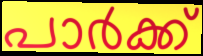
പാർക്ക്